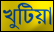
খুটিয়া